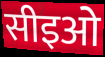
सीइओ